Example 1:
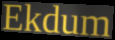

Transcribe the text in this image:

Ekdum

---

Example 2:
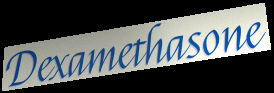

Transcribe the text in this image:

Dexamethasone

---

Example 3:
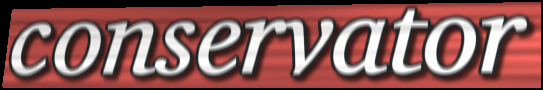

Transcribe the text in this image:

conservator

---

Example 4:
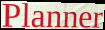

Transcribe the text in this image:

Planner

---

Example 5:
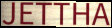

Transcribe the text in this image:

JETTHA